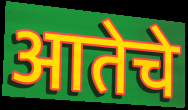
आतेचे